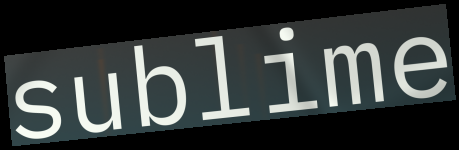
sublime